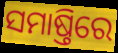
ସମାଷ୍ତିରେ